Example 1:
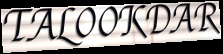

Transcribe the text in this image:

TALOOKDAR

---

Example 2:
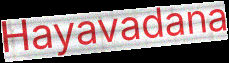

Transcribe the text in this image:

Hayavadana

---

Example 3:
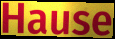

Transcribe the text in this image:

Hause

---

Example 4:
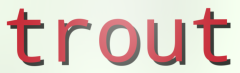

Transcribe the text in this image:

trout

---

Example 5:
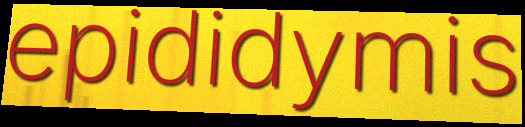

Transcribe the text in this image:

epididymis